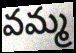
వమ్మ